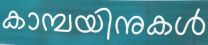
കാമ്പയിനുകൾ